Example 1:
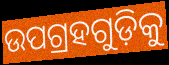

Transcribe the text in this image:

ଉପଗ୍ରହଗୁଡ଼ିକୁ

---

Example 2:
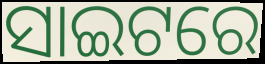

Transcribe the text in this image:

ସାଇଟରେ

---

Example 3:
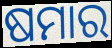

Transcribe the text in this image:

ଷମାର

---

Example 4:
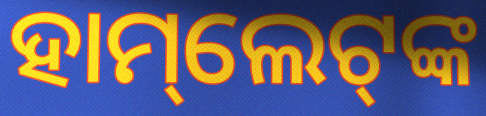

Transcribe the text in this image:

ହାମ୍‌ଲେଟ୍‌ଙ୍କ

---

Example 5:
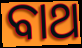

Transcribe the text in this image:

ବାଥ